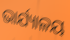
ଭାର୍ଯ୍ୟାଳୟ